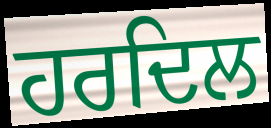
ਹਰਦਿਲ